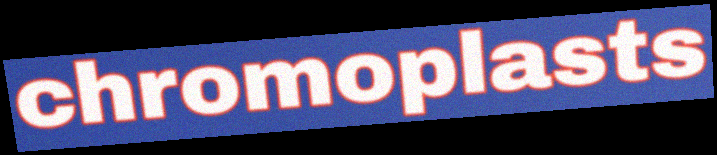
chromoplasts